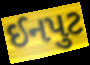
ઈનપુટ